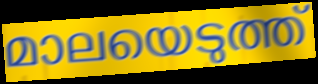
മാലയെടുത്ത്